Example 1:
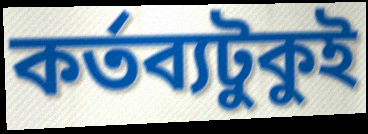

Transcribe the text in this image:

কর্তব্যটুকুই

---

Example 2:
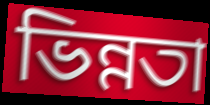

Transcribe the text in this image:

ভিন্নতা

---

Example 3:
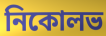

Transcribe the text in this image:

নিকোলভ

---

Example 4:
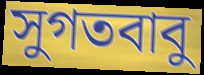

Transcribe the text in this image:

সুগতবাবু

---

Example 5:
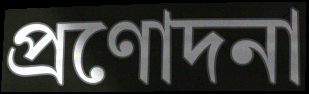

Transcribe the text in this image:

প্রণোদনা